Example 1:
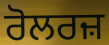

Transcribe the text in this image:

ਰੋਲਰਜ਼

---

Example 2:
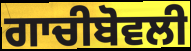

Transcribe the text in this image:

ਗਾਚੀਬੋਵਲੀ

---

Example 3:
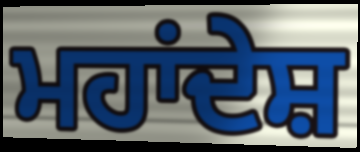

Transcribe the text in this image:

ਮਹਾਂਦੇਸ਼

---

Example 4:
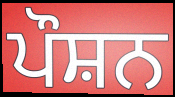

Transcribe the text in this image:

ਪੌਸ਼ਨ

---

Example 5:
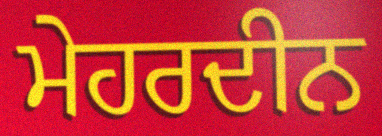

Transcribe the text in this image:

ਮੇਹਰਦੀਨ